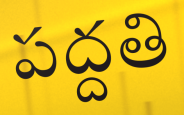
పద్దతి